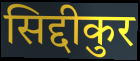
सिद्दीकुर